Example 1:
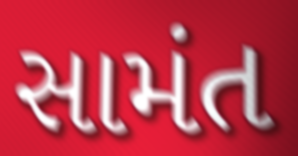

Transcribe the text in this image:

સામંત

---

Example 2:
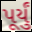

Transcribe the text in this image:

પૂર્યું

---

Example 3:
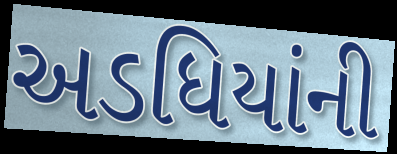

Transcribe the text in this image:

અડધિયાંની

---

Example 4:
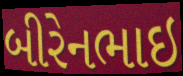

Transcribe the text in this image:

બીરેનભાઇ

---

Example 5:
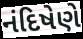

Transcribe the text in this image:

નંદિષેણે